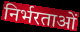
निर्भरताओं